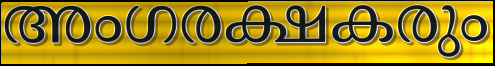
അംഗരക്ഷകരും